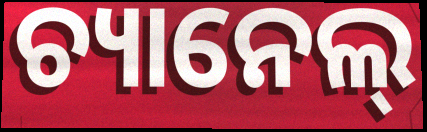
ଚ୍ୟାନେଲ୍